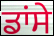
ਡਾਂਸੇ